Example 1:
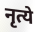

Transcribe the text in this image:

नृत्ये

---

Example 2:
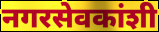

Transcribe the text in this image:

नगरसेवकांशी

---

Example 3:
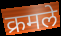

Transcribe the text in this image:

क्रमले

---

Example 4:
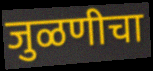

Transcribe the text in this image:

जुळणीचा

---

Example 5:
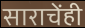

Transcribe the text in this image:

साराचेंही